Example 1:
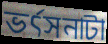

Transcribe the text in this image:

ভর্ৎসনাটা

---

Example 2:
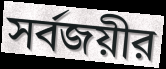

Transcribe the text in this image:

সর্বজয়ীর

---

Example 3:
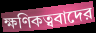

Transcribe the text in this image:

ক্ষণিকত্ববাদের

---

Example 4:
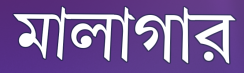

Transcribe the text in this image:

মালাগার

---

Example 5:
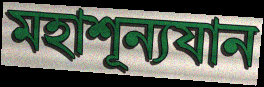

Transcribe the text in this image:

মহাশূন্যযান